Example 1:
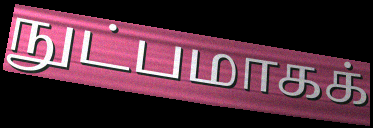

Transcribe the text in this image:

நுட்பமாகக்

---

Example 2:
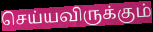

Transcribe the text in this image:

செய்யவிருக்கும்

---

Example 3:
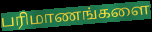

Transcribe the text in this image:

பரிமாணங்களை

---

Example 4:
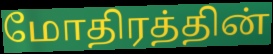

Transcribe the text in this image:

மோதிரத்தின்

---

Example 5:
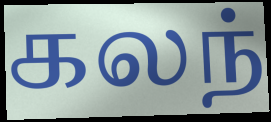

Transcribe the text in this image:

கலந்